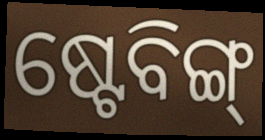
ଷ୍ଟେବିଙ୍ଗ୍